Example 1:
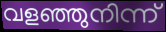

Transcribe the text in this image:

വളഞ്ഞുനിന്ന്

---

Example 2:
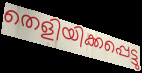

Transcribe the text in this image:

തെളിയിക്കപ്പെട്ടു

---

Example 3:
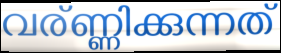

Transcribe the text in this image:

വര്ണ്ണിക്കുന്നത്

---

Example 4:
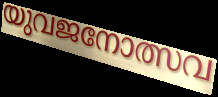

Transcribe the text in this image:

യുവജനോത്സവ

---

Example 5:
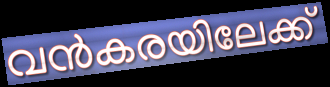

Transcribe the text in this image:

വൻകരയിലേക്ക്